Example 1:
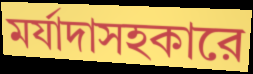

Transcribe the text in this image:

মর্যাদাসহকারে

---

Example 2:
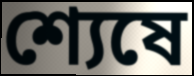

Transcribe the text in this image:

শ্যেষে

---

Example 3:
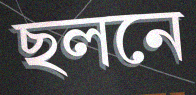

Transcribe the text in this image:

ছলনে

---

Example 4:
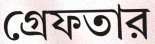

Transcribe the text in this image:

গ্রেফতার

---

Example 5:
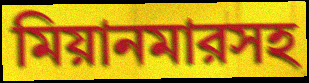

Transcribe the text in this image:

মিয়ানমারসহ